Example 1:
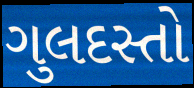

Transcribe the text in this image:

ગુલદસ્તો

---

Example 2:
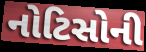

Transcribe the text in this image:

નોટિસોની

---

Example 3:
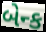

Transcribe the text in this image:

બેન્ક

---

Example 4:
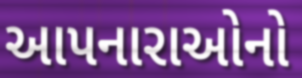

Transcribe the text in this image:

આપનારાઓનો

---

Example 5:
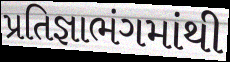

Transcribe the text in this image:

પ્રતિજ્ઞાભંગમાંથી